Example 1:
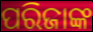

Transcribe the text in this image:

ପରିଜାଙ୍କ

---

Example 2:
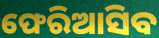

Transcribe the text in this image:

ଫେରିଆସିବ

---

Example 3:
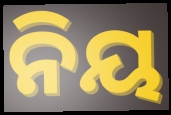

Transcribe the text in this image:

ନିୟ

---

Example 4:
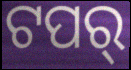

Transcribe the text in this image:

ଟପର୍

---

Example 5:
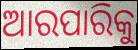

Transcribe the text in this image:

ଆରପାରିକୁ